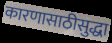
कारणासाठीसुद्धा